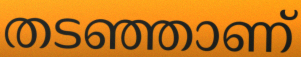
തടഞ്ഞാണ്